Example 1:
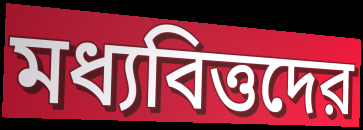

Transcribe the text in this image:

মধ্যবিত্তদের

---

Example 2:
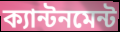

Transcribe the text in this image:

ক্যান্টনমেন্ট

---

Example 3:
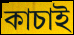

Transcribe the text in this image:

কাচাই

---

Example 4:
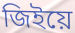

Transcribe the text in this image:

জিইয়ে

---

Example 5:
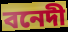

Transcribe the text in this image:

বনেদী